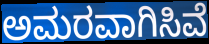
ಅಮರವಾಗಿಸಿವೆ